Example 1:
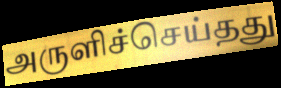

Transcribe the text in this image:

அருளிச்செய்தது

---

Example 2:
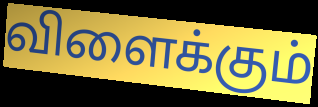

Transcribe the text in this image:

விளைக்கும்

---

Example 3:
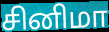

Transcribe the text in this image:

சினிமா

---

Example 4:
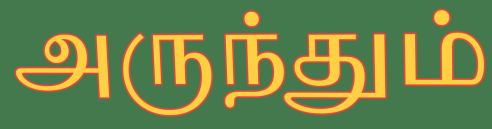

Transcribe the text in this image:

அருந்தும்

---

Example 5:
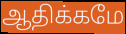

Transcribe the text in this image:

ஆதிக்கமே